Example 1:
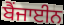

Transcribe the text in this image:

ਬੈਂਜਾਈਨ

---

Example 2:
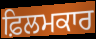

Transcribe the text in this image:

ਫ਼ਿਲਮਕਾਰ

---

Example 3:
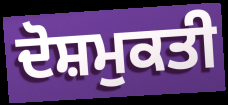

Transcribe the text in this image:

ਦੋਸ਼ਮੁਕਤੀ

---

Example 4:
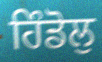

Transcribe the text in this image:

ਹਿੰਡੋਲੁ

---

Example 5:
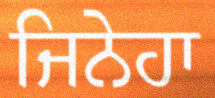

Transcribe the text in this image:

ਜਿਨੇਹਾ